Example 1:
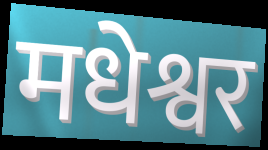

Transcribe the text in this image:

मधेश्वर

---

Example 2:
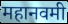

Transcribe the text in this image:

महानवमी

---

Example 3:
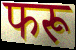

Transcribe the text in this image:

फरू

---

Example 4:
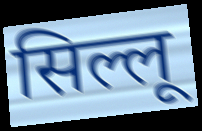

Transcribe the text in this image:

सिल्लू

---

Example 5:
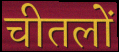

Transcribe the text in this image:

चीतलों